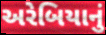
અરેબિયાનું